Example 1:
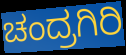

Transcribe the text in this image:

ಚಂದ್ರಗಿರಿ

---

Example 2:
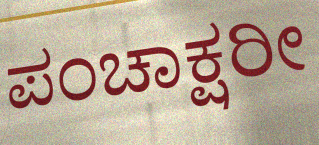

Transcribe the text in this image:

ಪಂಚಾಕ್ಷರೀ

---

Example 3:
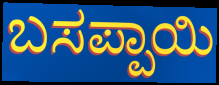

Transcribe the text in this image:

ಬಸಪ್ಪಾಯಿ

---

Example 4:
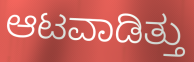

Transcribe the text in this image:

ಆಟವಾಡಿತ್ತು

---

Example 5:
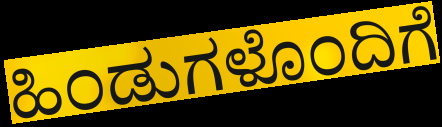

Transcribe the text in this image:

ಹಿಂಡುಗಳೊಂದಿಗೆ